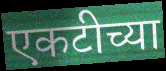
एकटीच्या